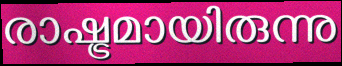
രാഷ്ട്രമായിരുന്നു